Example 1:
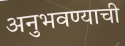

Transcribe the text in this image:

अनुभवण्याची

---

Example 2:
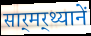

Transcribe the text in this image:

सार्मर्थ्यानें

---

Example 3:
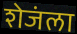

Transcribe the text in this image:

शेजंला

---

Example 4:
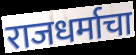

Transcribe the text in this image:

राजधर्माचा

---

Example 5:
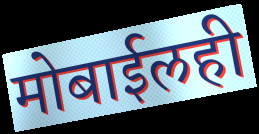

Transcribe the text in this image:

मोबाईलही